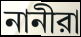
নানীরা